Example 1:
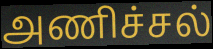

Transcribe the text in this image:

அணிச்சல்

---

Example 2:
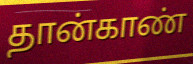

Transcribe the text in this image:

தான்காண்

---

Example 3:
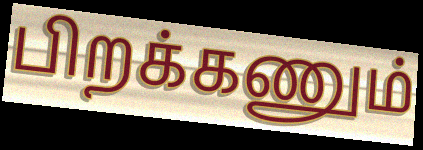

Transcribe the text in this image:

பிறக்கணும்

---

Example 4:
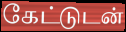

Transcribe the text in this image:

கேட்டுடன்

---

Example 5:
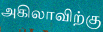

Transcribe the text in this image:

அகிலாவிற்கு